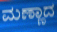
ಮಣ್ಣಾದ